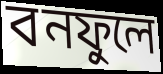
বনফুলে